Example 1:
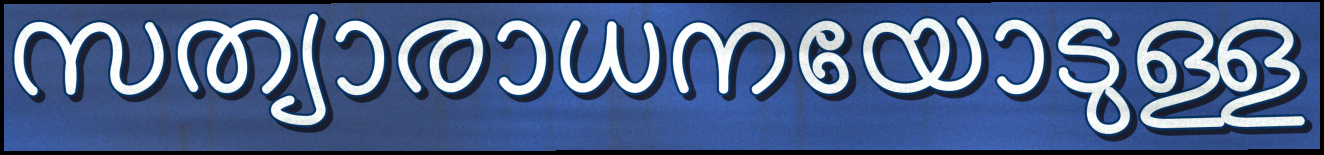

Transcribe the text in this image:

സത്യാരാധനയോടുള്ള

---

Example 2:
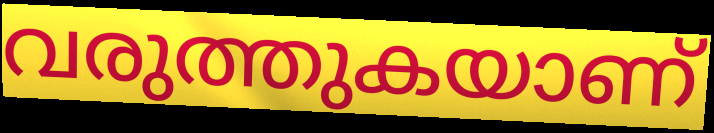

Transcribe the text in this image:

വരുത്തുകയാണ്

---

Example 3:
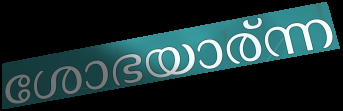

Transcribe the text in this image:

ശോഭയാര്ന്ന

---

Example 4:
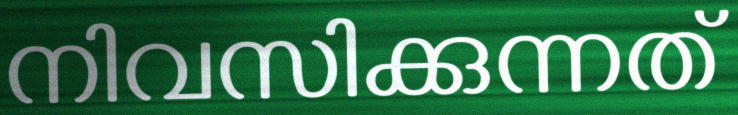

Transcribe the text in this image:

നിവസിക്കുന്നത്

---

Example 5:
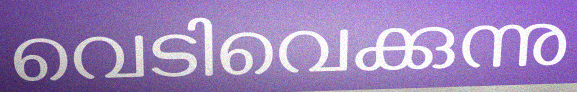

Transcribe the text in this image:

വെടിവെക്കുന്നു